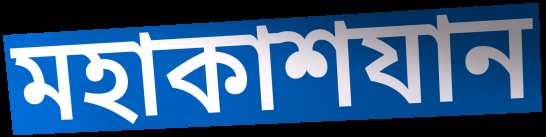
মহাকাশযান